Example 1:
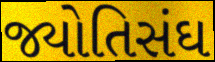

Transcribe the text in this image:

જ્યોતિસંઘ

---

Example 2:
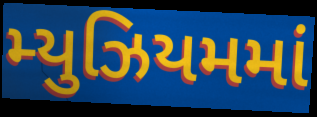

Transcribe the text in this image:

મ્યુઝિયમમાં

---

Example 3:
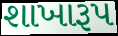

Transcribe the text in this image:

શાખારૂપ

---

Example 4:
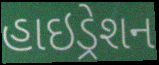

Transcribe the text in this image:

હાઇડ્રેશન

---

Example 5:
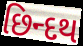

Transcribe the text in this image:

છિન્દથ